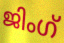
ജിംഗ്